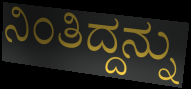
ನಿಂತಿದ್ದನ್ನು